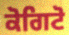
ਕੋਗਿਟੋ